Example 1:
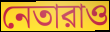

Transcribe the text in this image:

নেতারাও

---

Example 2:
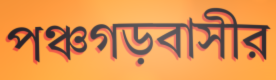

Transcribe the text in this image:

পঞ্চগড়বাসীর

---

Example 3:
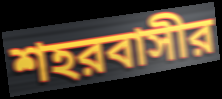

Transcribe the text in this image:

শহরবাসীর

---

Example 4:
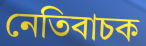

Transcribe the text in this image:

নেতিবাচক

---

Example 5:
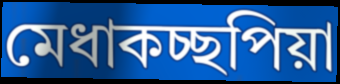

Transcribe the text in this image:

মেধাকচ্ছপিয়া